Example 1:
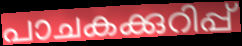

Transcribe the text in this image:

പാചകക്കുറിപ്പ്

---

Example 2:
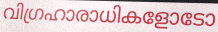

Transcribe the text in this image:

വിഗ്രഹാരാധികളോടോ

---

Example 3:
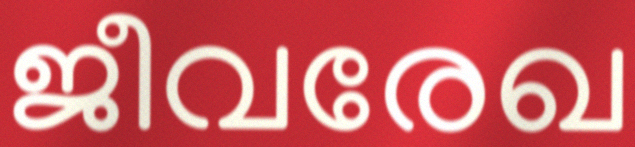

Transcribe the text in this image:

ജീവരേഖ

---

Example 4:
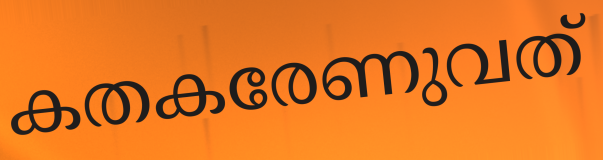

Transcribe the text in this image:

കതകരേണുവത്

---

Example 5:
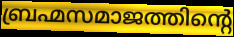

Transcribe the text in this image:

ബ്രഹ്മസമാജത്തിന്റെ